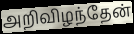
அறிவிழந்தேன்